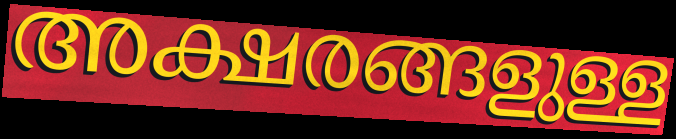
അക്ഷരങ്ങളുള്ള